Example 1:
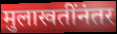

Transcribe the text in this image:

मुलाखतींनंतर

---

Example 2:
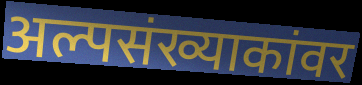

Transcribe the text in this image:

अल्पसंख्याकांवर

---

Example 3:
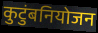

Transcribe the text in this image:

कुटुंबनियोजन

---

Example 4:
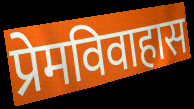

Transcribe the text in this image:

प्रेमविवाहास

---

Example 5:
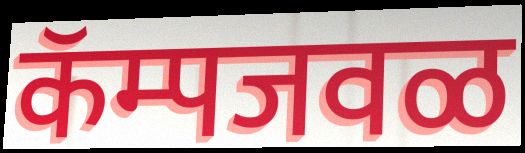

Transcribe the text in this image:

कॅम्पजवळ